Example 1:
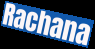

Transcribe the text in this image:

Rachana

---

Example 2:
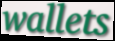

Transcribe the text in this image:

wallets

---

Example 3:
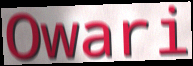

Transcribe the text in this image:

Owari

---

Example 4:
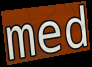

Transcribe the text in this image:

med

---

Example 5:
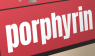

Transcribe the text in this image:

porphyrin